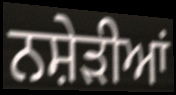
ਨਸ਼ੇੜੀਆਂ